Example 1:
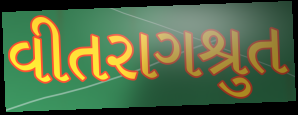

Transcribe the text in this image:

વીતરાગશ્રુત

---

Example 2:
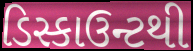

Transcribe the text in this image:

ડિસ્કાઉન્ટથી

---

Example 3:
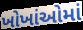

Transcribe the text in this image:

ખોખાંઓમાં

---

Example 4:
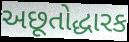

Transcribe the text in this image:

અછૂતોદ્ધારક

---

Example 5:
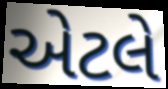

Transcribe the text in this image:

એેટલે